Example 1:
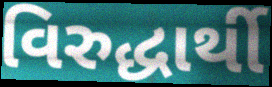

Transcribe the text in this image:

વિરુદ્ધાર્થી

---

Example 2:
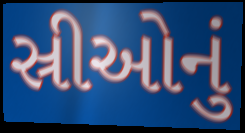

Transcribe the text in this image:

સ્રીઓનું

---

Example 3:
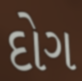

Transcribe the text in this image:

દોગ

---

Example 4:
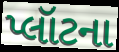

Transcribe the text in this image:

પ્લૉટના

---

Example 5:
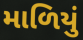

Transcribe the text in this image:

માળિયું